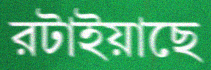
রটাইয়াছে